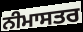
ਨੀਮਾਸਤਰ